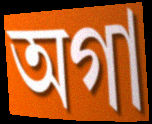
অগা